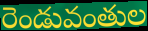
రెండువంతుల